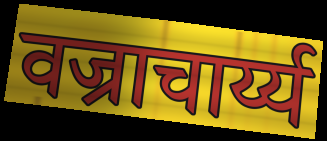
वज्राचार्य्य